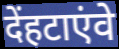
देंहटाएंवे